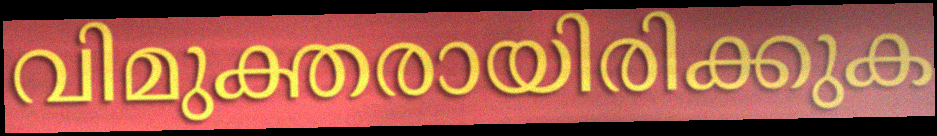
വിമുക്തരായിരിക്കുക